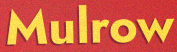
Mulrow